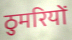
ठुमरियों